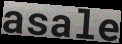
asale